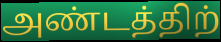
அண்டத்திற்